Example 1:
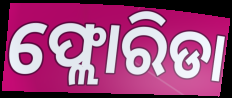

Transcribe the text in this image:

ଫ୍ଲୋରିଡା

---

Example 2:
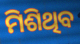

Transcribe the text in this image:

ମିଶିଥିବ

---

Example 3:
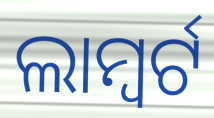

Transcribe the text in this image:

ଲାମ୍ବର୍ଟ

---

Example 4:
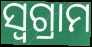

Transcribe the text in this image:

ସ୍ୱଗ୍ରାମ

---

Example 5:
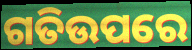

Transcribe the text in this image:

ଗତିଉପରେ